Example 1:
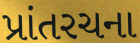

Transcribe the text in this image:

પ્રાંતરચના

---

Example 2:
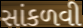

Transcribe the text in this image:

સાંકળવી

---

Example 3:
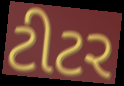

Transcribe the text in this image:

ટીટર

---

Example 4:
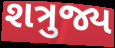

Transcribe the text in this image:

શત્રુજ્ય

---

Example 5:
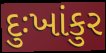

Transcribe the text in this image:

દુઃખાંકુર